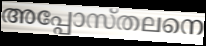
അപ്പോസ്തലനെ